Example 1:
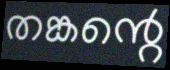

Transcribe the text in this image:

തങ്കന്റെ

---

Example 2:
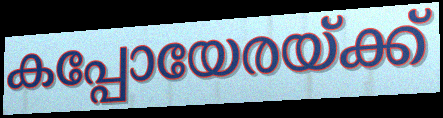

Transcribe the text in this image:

കപ്പോയേരയ്ക്ക്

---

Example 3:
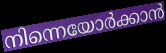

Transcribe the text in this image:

നിന്നെയോർക്കാൻ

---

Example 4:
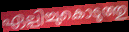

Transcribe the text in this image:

ഏല്പിച്ചുകൊടുത്തു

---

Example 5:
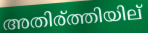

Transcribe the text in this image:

അതിര്ത്തിയില്